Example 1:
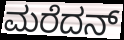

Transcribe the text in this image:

ಮರೆದನ್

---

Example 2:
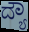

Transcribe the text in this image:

ದ್ಯೌ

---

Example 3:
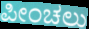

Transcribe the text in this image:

ಪೀಂಚಲು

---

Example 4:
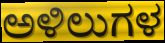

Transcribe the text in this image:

ಅಳಿಲುಗಳ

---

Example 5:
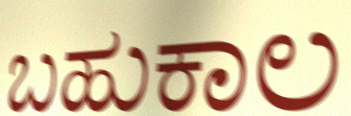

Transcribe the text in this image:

ಬಹುಕಾಲ